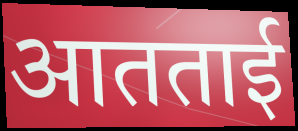
आतताई